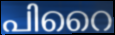
പിറൈ